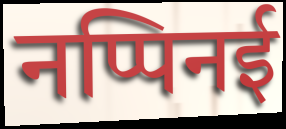
नप्पिनई